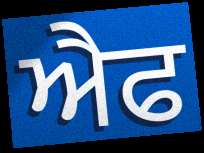
ਐਫ